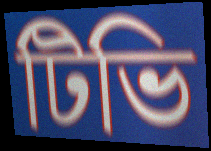
টিভি